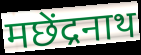
मछेंद्रनाथ